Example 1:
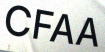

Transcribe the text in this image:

CFAA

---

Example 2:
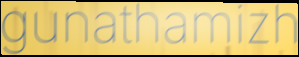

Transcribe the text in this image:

gunathamizh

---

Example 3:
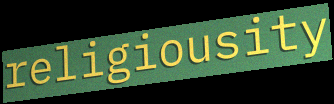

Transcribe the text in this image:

religiousity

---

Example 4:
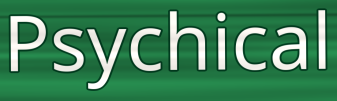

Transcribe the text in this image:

Psychical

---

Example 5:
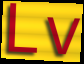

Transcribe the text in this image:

Lv